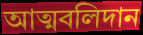
আত্মবলিদান